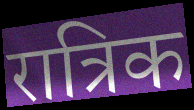
रात्रिक